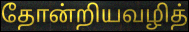
தோன்றியவழித்